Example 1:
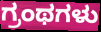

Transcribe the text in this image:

ಗ್ರಂಥಗಳು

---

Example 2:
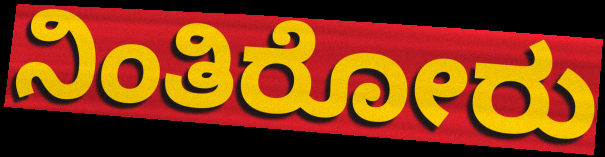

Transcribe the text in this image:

ನಿಂತಿರೋರು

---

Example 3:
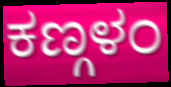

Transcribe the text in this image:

ಕಣ್ಗಳಂ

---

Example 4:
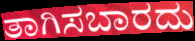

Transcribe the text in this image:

ತಾಗಿಸಬಾರದು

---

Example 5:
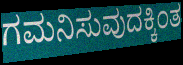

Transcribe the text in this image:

ಗಮನಿಸುವುದಕ್ಕಿಂತ